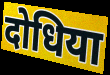
दोधिया